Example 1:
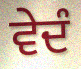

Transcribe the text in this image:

ਵੇਦੰ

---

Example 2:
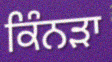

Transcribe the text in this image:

ਕਿੰਨੜਾ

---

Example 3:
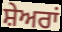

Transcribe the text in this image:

ਸ਼ੇਅਰਾਂ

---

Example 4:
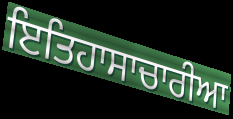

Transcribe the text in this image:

ਇਤਿਹਾਸਾਚਾਰੀਆ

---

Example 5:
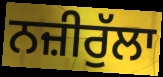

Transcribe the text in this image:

ਨਜ਼ੀਰੁੱਲਾ